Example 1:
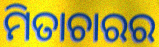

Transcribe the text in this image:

ମିତାଚାରର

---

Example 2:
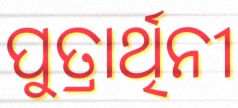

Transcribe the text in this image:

ପୁତ୍ରାର୍ଥିନୀ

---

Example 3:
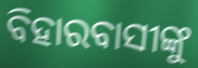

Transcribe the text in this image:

ବିହାରବାସୀଙ୍କୁ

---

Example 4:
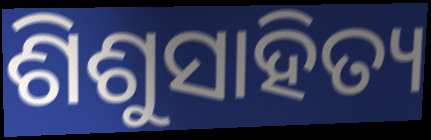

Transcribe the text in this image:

ଶିଶୁସାହିତ୍ୟ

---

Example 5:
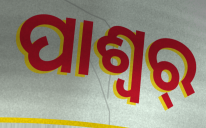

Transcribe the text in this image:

ପାଶ୍ୱର୍